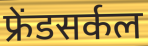
फ्रेंडसर्कल